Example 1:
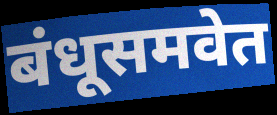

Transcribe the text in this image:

बंधूसमवेत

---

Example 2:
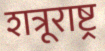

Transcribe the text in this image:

शत्रूराष्ट्र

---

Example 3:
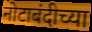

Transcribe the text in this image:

नोटाबंदीच्या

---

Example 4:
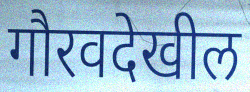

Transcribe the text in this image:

गौरवदेखील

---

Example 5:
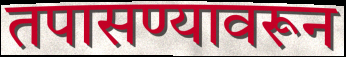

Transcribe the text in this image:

तपासण्यावरून